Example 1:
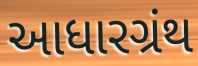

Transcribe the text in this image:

આધારગ્રંથ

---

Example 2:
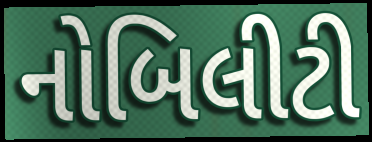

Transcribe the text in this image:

નોબિલીટી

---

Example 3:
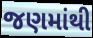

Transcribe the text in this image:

જણમાંથી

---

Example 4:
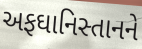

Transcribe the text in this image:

અફઘાનિસ્તાનને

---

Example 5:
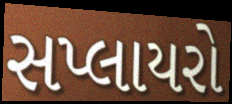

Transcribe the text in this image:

સપ્લાયરો